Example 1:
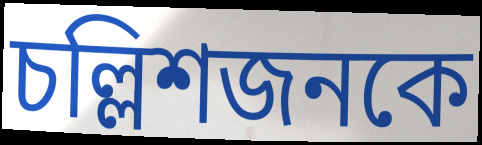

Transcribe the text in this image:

চল্লিশজনকে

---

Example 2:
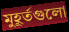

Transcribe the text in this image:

মুহূর্তগুলো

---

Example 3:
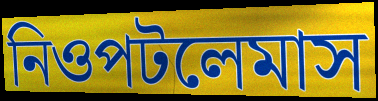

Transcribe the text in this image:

নিওপটলেমাস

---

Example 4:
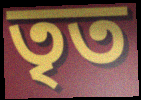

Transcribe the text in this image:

তৃত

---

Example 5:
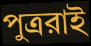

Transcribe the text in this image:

পুত্ররাই